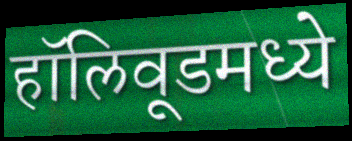
हॉलिवूडमध्ये